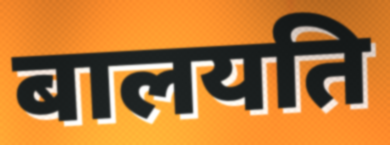
बालयति